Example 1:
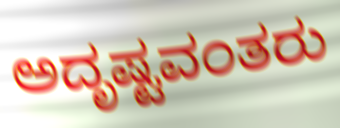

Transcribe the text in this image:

ಅದೃಷ್ಟವಂತರು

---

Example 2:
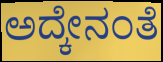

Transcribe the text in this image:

ಅದ್ಕೇನಂತೆ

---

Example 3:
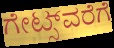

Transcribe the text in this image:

ಗೇಟ್ಸ್‌ವರೆಗೆ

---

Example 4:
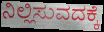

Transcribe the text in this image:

ನಿಲ್ಲಿಸುವದಕ್ಕೆ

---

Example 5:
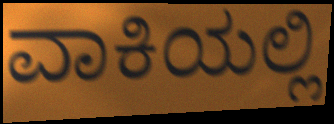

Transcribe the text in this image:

ವಾಕಿಯಲ್ಲಿ